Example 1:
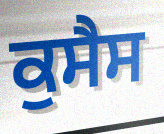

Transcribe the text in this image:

ਕੁਸੈਸ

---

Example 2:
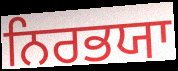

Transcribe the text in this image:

ਨਿਰਭਯਾ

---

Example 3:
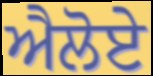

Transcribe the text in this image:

ਐਲੋਏ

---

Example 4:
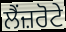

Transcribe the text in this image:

ਲੈਂਜ਼ਰੋਟੇ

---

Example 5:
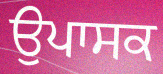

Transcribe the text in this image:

ਉਪਾਸਕ